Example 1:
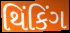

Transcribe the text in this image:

થિંકિંગ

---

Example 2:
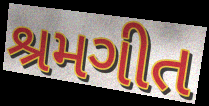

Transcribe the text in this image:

શ્રમગીત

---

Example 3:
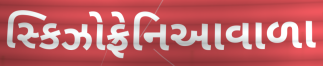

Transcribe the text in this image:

સ્કિઝોફ્રેનિઆવાળા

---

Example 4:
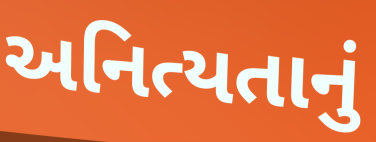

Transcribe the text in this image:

અનિત્યતાનું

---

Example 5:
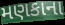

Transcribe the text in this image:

મણકાના